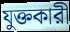
যুক্তকারী